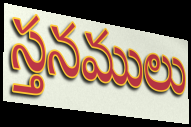
స్తనములు